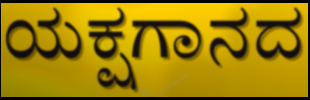
ಯಕ್ಷಗಾನದ